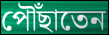
পৌঁছাতেন